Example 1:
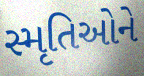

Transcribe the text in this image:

સ્મૃતિઓને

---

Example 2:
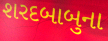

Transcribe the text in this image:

શરદબાબુના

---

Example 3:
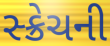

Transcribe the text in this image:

સ્ક્રેચની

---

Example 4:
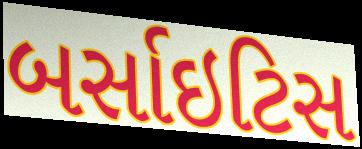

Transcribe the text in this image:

બર્સાઇટિસ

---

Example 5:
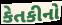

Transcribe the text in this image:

કેતકીનો